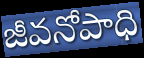
జీవనోపాధి